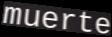
muerte